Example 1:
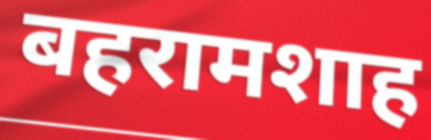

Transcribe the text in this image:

बहरामशाह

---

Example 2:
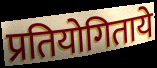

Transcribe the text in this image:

प्रतियोगिताये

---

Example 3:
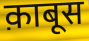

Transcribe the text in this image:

क़ाबूस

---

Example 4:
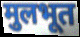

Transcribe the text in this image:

मुलभूत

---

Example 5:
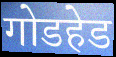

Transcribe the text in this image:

गोडहेड